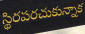
స్థిరపరచుకున్నాక